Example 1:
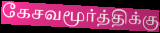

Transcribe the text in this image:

கேசவமூர்த்திக்கு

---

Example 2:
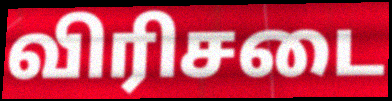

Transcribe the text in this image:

விரிசடை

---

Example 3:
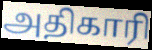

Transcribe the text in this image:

அதிகாரி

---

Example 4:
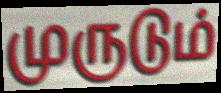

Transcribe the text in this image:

முருடும்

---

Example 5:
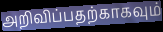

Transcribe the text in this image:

அறிவிப்பதற்காகவும்